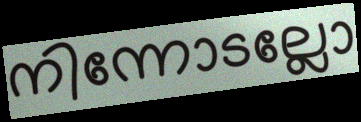
നിന്നോടല്ലോ